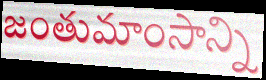
జంతుమాంసాన్ని